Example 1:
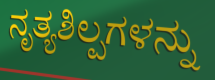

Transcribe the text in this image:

ನೃತ್ಯಶಿಲ್ಪಗಳನ್ನು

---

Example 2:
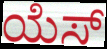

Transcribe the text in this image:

ಯೆಸ್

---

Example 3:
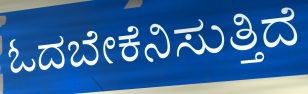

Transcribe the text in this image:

ಓದಬೇಕೆನಿಸುತ್ತಿದೆ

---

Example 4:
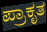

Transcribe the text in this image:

ಪ್ರಾಕೃತ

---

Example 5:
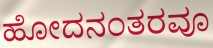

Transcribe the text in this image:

ಹೋದನಂತರವೂ